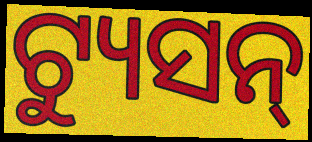
ଟ୍ୟୁସନ୍